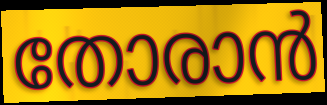
തോരാൻ